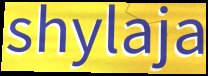
shylaja